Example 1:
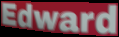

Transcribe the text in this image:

Edward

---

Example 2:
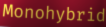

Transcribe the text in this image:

Monohybrid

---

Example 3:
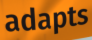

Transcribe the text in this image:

adapts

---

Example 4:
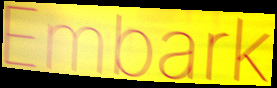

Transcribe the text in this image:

Embark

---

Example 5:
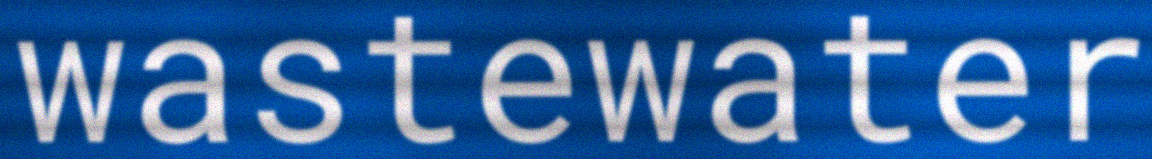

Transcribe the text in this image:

wastewater